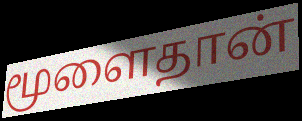
மூளைதான்